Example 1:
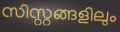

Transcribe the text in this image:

സിസ്റ്റങ്ങളിലും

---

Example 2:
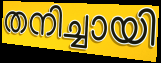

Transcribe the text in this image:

തനിച്ചായി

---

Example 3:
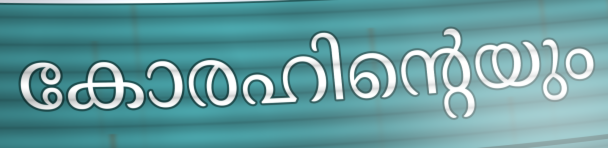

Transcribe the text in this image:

കോരഹിന്റെയും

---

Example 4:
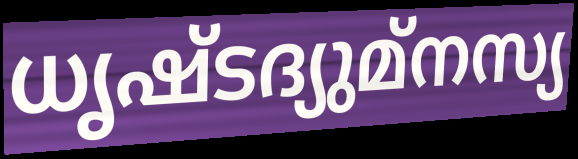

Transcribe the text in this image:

ധൃഷ്ടദ്യുമ്നസ്യ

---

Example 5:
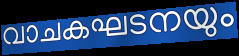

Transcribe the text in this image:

വാചകഘടനയും